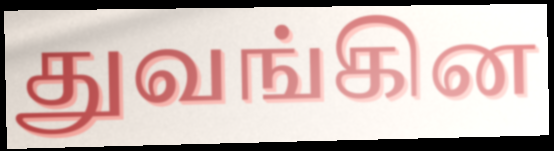
துவங்கின